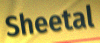
Sheetal